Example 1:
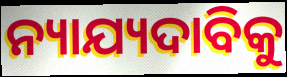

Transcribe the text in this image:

ନ୍ୟାଯ୍ୟଦାବିକୁ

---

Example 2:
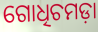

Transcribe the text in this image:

ଗୋଧିଚମଡ଼ା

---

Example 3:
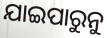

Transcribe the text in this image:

ଯାଇପାରୁନୁ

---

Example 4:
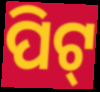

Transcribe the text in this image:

ପିଟ୍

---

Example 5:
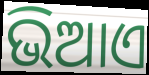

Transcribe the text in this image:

ଭିଆଏ